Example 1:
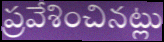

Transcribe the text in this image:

ప్రవేశించినట్లు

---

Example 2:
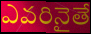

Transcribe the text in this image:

ఎవరినైతే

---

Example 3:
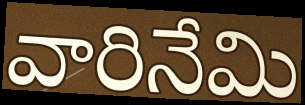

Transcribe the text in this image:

వారినేమి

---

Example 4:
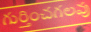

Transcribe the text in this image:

గుర్తించగలవు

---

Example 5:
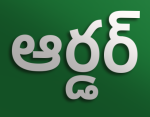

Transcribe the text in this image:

ఆర్డర్